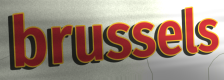
brussels